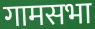
गामसभा